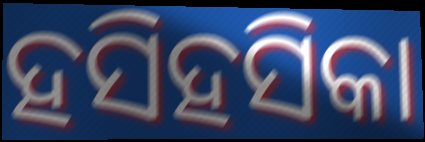
ହସିହସିକା